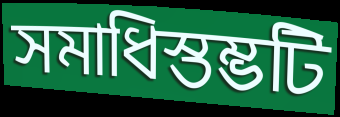
সমাধিস্তম্ভটি